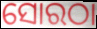
ସୋରଠା